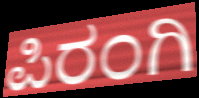
ಪಿರಂಗಿ